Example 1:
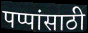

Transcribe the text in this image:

पप्पांसाठी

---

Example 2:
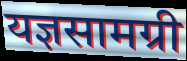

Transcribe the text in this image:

यज्ञसामग्री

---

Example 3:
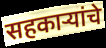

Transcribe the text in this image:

सहकार्‍यांचे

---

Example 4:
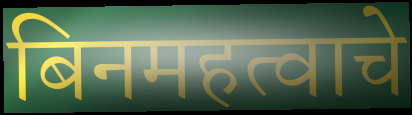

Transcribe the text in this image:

बिनमहत्वाचे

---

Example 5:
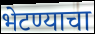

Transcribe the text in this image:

भेटण्याचा